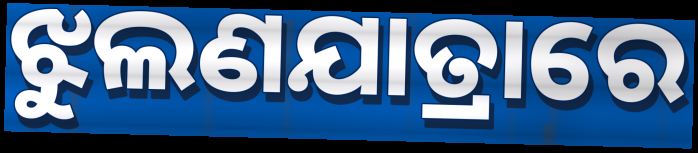
ଝୁଲଣଯାତ୍ରାରେ